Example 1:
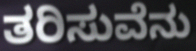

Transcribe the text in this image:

ತರಿಸುವೆನು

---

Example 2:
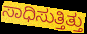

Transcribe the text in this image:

ಸಾಧಿಸುತ್ತಿತ್ತು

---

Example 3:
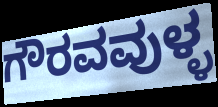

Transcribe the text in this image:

ಗೌರವವುಳ್ಳ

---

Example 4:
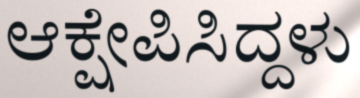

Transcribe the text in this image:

ಆಕ್ಷೇಪಿಸಿದ್ದಳು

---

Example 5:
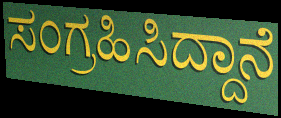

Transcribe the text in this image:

ಸಂಗ್ರಹಿಸಿದ್ದಾನೆ